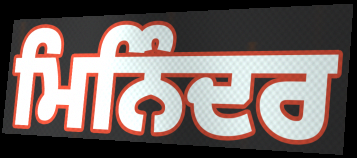
ਮਿਨਿੰਦਰ